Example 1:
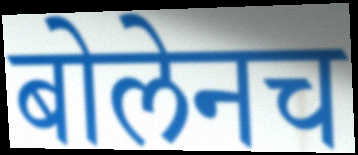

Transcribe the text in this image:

बोलेनच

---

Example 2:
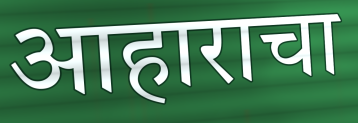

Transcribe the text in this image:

आहाराचा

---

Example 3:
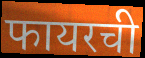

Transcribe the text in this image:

फायरची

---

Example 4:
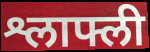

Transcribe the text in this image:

श्लाफ्ली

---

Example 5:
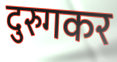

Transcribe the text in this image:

दुरुगकर